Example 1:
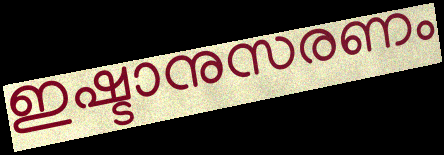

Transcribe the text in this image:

ഇഷ്ടാനുസരണം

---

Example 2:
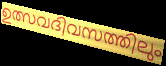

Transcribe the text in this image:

ഉത്സവദിവസത്തിലും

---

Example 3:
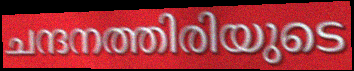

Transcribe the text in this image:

ചന്ദനത്തിരിയുടെ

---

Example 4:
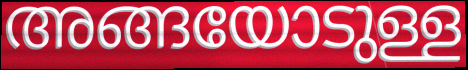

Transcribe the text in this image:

അങ്ങയോടുള്ള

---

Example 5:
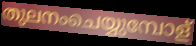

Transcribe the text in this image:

തുലനംചെയ്യുമ്പോള്